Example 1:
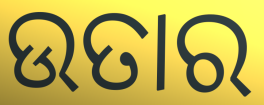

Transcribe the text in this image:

ଉତାର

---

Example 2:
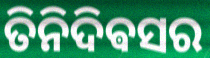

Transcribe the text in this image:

ତିନିଦିଵସର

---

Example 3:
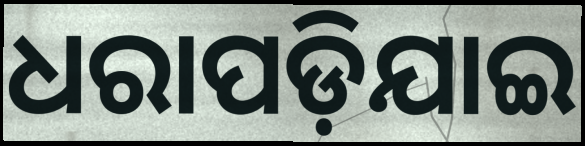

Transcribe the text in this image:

ଧରାପଡ଼ିଯାଇ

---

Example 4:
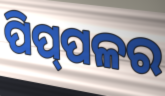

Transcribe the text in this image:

ପିପ୍‌ପଳର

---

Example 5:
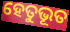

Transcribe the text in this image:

ହେତୁଭୂତ